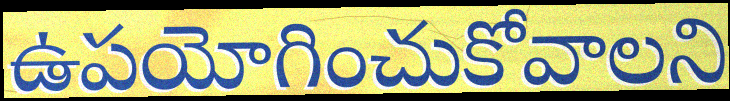
ఉపయోగించుకోవాలని